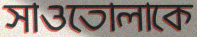
সাওতোলাকে